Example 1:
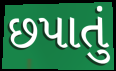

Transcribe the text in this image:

છપાતું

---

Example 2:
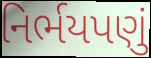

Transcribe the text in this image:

નિર્ભયપણું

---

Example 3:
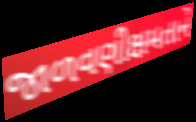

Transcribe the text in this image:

જાળવણીક્ષમતાને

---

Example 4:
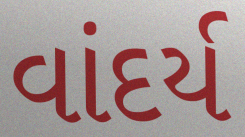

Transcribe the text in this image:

વાંદર્ય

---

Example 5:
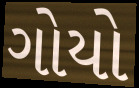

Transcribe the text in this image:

ગોયો